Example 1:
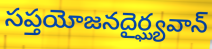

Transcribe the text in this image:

సప్తయోజనదైర్ఘ్యవాన్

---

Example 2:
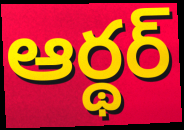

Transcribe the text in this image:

ఆర్థర్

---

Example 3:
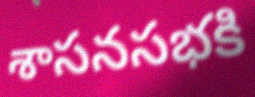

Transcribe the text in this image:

శాసనసభకి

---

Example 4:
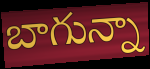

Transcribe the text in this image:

బాగున్నా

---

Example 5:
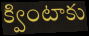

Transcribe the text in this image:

క్వింటాకు